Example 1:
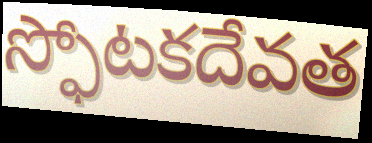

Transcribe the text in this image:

స్ఫోటకదేవత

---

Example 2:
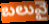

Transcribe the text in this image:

బలువై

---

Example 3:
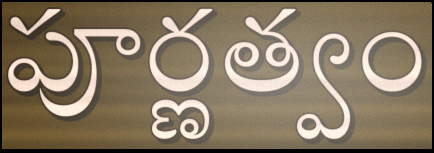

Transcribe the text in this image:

పూర్ణత్వం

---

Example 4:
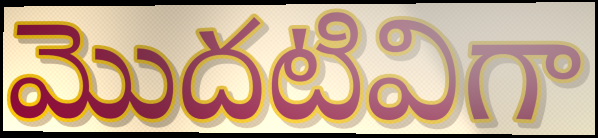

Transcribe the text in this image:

మొదటివిగా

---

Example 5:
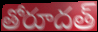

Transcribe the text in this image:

తోరూదత్